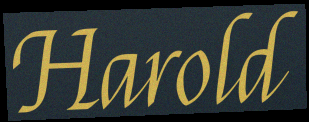
Harold